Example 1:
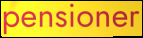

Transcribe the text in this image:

pensioner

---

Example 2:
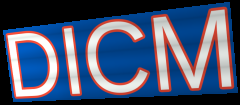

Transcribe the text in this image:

DICM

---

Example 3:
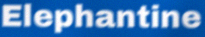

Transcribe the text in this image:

Elephantine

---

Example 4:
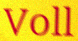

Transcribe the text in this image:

Voll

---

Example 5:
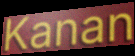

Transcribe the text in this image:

Kanan